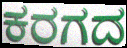
ಕರಗದ